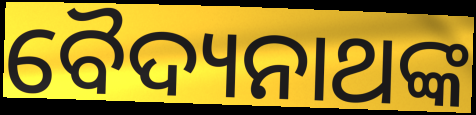
ବୈଦ୍ୟନାଥଙ୍କ